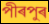
পীৰপুৰ